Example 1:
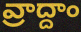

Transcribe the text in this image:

వ్రాద్దాం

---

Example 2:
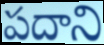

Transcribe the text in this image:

పదాని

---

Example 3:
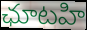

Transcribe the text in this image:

ఛూటహి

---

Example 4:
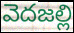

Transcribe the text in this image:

వెదజల్లి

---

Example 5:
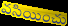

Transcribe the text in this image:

వసియించు